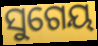
ସୁଗେୟ